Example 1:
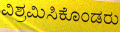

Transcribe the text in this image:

ವಿಶ್ರಮಿಸಿಕೊಂಡರು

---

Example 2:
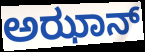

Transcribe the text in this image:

ಅಝಾನ್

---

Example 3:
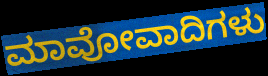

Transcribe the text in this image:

ಮಾವೋವಾದಿಗಳು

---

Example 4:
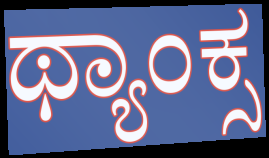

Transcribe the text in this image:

ಥ್ಯಾಂಕ್ಸ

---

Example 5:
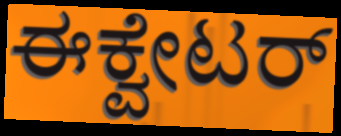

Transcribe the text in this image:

ಈಕ್ವೇಟರ್